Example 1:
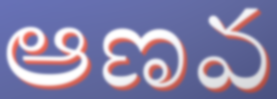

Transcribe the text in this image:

ఆణవ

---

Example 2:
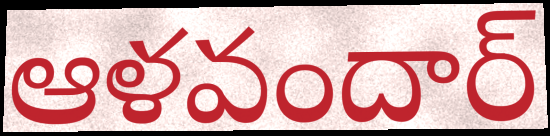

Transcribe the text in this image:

ఆళవందార్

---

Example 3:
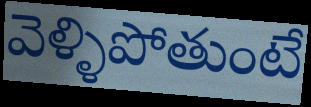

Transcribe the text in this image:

వెళ్ళిపోతుంటే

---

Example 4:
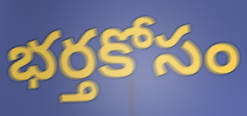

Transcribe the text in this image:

భర్తకోసం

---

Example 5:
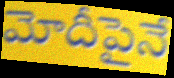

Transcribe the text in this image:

మోదీపైనే